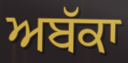
ਅਬੱਕਾ